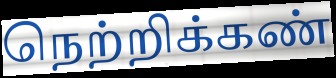
நெற்றிக்கண்